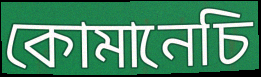
কোমানেচি